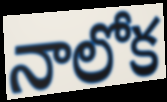
నాలోక